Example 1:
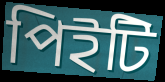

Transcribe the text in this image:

পিইটি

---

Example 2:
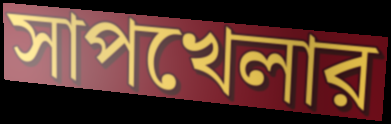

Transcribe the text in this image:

সাপখেলার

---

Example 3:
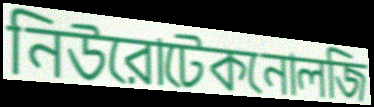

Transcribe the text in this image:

নিউরোটেকনোলজি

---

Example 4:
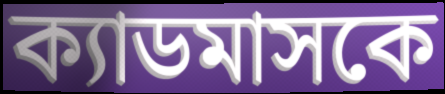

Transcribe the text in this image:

ক্যাডমাসকে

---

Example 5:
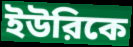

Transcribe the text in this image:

ইউরিকে